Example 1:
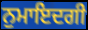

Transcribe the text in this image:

ਨੁਮਾਇਦਗੀ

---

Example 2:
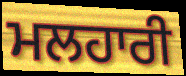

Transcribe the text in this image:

ਮਲਹਾਰੀ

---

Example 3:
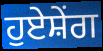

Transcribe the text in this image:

ਹੁਏਸ਼ੇਂਗ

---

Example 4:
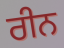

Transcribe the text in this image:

ਰੀਨ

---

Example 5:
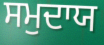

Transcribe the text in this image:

ਸਮੁਦਾਯ